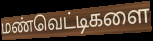
மண்வெட்டிகளை